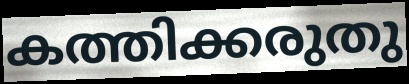
കത്തിക്കരുതു